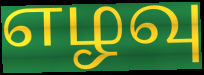
எழவு